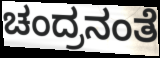
ಚಂದ್ರನಂತೆ